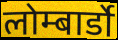
लोम्बार्डो